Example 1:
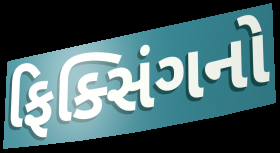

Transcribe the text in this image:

ફિક્સિંગનો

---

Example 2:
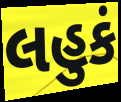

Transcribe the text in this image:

લહુકં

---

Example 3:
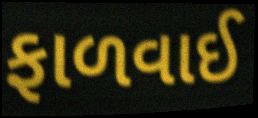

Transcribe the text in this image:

ફાળવાઈ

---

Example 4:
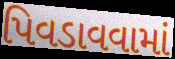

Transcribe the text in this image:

પિવડાવવામાં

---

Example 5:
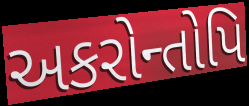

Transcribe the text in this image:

અકરોન્તોપિ